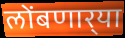
लोंबणार्‍या